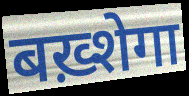
बख़्शेगा